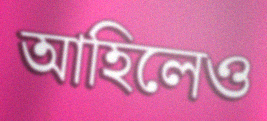
আহিলেও